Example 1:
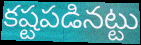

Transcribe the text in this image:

కష్టపడినట్టు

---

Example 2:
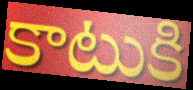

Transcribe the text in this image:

కాటుకి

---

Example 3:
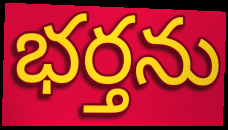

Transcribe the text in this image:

భర్తను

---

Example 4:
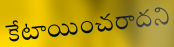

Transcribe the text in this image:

కేటాయించరాదని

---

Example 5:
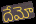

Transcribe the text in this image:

దేమో